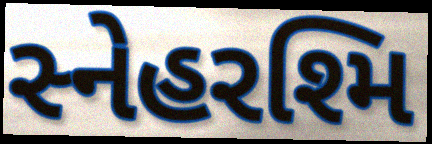
સ્નેહરશ્મિ